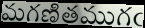
మగణితముగఁ